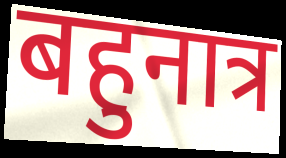
बहुनात्र